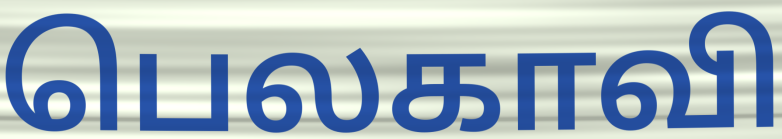
பெலகாவி